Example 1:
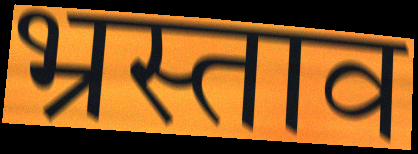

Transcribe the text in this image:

भ्रस्ताव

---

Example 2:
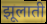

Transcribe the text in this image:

झूलाती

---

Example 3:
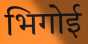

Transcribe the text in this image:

भिगोई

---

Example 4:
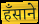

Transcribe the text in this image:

हँसाने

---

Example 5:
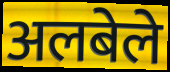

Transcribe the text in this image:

अलबेले